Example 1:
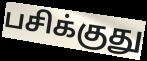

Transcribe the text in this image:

பசிக்குது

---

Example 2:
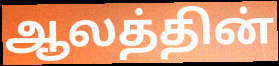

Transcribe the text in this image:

ஆலத்தின்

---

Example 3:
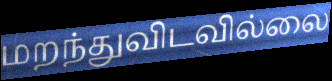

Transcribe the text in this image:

மறந்துவிடவில்லை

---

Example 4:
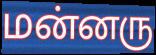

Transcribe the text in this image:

மன்னரு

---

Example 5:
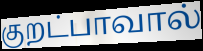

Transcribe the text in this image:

குறட்பாவால்